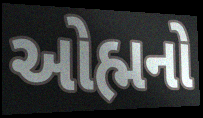
ઓહ્મનો